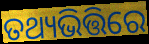
ତଥ୍ୟଭିତ୍ତିରେ